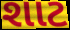
શાટ